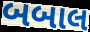
બબાલ